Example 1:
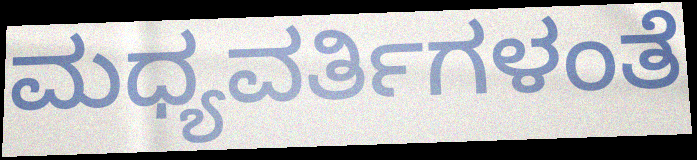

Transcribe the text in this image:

ಮಧ್ಯವರ್ತಿಗಳಂತೆ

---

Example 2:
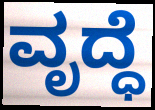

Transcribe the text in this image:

ವೃದ್ಧೆ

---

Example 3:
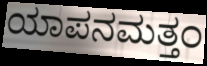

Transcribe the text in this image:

ಯಾಪನಮತ್ತಂ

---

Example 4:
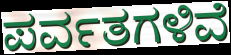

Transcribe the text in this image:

ಪರ್ವತಗಳಿವೆ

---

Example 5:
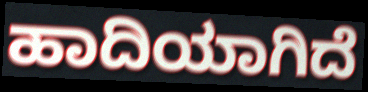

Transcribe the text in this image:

ಹಾದಿಯಾಗಿದೆ